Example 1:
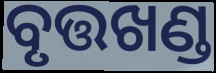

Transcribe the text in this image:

ବୃତ୍ତଖଣ୍ଡ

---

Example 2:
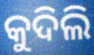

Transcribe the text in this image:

କୁଦିଲି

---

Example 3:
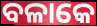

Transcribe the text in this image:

ବଳାକେ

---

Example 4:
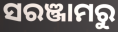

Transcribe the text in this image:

ସରଞ୍ଜାମରୁ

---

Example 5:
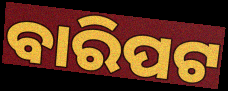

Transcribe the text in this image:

ବାରିପଟ